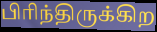
பிரிந்திருக்கிற